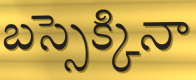
బస్సెక్కినా